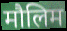
मौलिम